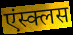
एंस्क्लस